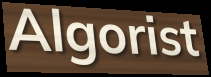
Algorist